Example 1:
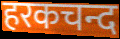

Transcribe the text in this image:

हरकचन्द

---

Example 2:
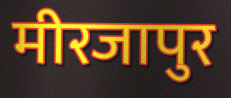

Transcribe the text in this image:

मीरजापुर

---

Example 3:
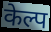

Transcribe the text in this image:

केल्प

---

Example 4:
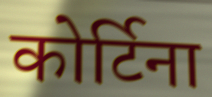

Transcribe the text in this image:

कोर्टिना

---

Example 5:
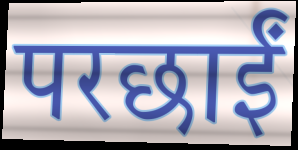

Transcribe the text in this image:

परछाईं